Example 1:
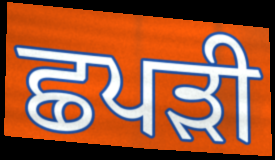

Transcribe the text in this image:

ਛਪੜੀ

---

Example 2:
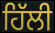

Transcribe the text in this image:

ਹਿੱਲੀ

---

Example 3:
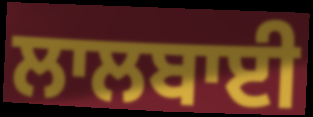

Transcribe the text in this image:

ਲਾਲਬਾਈ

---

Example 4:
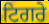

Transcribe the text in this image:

ਟਿਗਰੇ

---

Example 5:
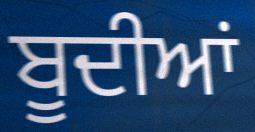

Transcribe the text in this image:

ਬੂਦੀਆਂ